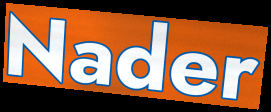
Nader